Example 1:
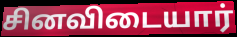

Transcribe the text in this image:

சினவிடையார்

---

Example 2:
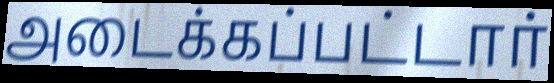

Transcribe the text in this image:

அடைக்கப்பட்டார்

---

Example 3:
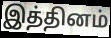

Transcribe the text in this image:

இத்தினம்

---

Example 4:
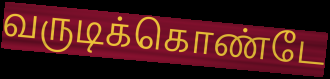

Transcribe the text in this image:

வருடிக்கொண்டே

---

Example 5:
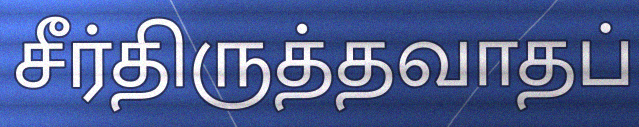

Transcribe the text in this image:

சீர்திருத்தவாதப்